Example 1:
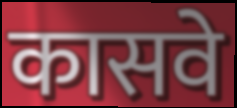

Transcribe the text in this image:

कासवे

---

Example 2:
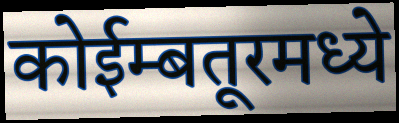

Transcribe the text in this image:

कोईम्बतूरमध्ये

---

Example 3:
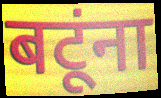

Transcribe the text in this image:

बटूंना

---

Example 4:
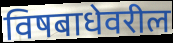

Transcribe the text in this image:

विषबाधेवरील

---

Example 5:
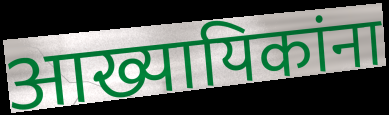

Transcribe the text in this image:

आख्यायिकांना